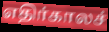
எதிர்காலச்